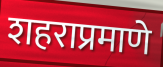
शहराप्रमाणे